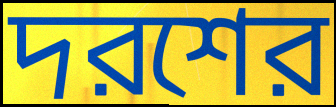
দরশের